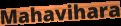
Mahavihara